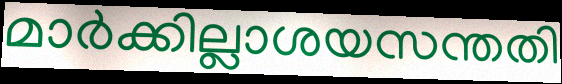
മാർക്കില്ലാശയസന്തതി